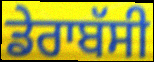
ਡੇਰਾਬੱਸੀ